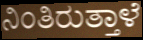
ನಿಂತಿರುತ್ತಾಳೆ